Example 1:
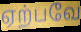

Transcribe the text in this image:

ஏற்பவே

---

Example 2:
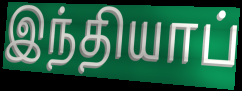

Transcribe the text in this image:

இந்தியாப்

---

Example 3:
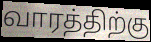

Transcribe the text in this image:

வாரத்திற்கு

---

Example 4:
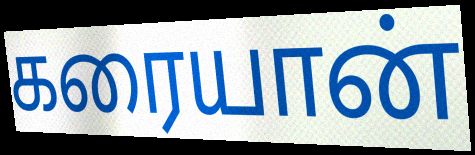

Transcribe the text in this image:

கரையான்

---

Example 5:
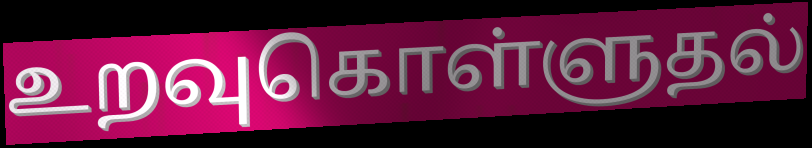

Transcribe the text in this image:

உறவுகொள்ளுதல்